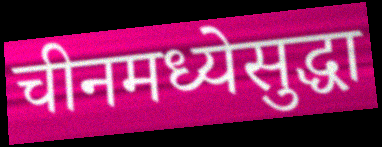
चीनमध्येसुद्धा